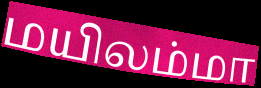
மயிலம்மா